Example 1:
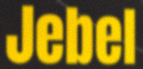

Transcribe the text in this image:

Jebel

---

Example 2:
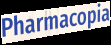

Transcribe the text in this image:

Pharmacopia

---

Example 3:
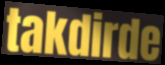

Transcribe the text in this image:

takdirde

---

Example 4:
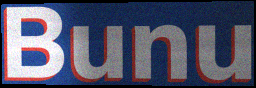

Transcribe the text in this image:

Bunu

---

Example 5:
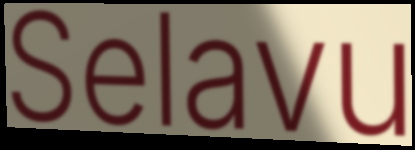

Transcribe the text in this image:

Selavu